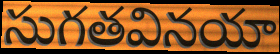
సుగతవినయా